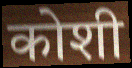
कोशी